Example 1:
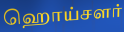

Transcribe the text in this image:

ஹொய்சளர்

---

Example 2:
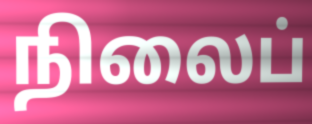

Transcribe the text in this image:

நிலைப்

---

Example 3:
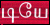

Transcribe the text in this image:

டியே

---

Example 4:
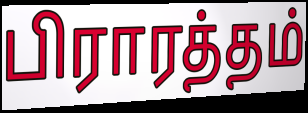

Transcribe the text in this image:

பிராரத்தம்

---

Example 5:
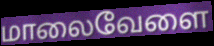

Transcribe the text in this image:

மாலைவேளை